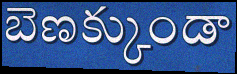
బెణక్కుండా